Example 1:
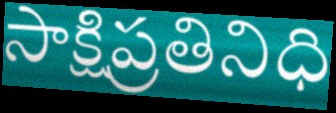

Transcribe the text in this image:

సాక్షిప్రతినిధి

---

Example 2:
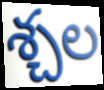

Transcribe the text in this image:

శ్చల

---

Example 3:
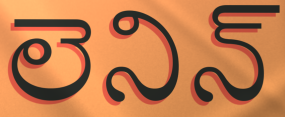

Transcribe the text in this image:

లెనిన్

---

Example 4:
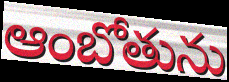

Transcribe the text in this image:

ఆంబోతును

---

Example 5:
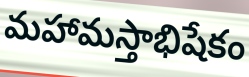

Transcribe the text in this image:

మహామస్తాభిషేకం